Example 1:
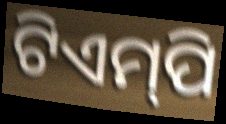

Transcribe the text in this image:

ଟିଏମ୍‌ପି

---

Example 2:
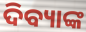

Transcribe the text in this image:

ଦିବ୍ୟାଙ୍କ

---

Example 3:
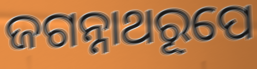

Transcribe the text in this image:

ଜଗନ୍ନାଥରୂପେ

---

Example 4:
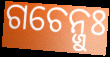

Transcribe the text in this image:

ଗଚେନ୍ଜୁଃ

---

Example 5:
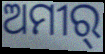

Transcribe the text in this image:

ଅମୀର୍